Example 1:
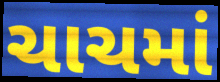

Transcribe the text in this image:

ચાચમાં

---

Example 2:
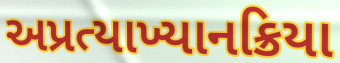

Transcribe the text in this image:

અપ્રત્યાખ્યાનક્રિયા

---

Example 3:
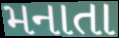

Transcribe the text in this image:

મનાતા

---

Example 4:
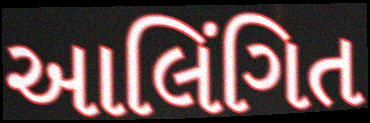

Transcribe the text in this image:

આલિંગિત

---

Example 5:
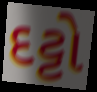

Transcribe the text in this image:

દટ્ટો